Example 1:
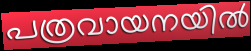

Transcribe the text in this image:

പത്രവായനയിൽ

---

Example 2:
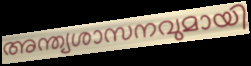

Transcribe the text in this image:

അന്ത്യശാസനവുമായി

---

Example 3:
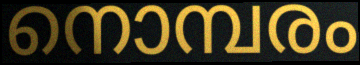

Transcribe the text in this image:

നൊമ്പരം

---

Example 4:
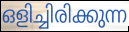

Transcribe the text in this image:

ഒളിച്ചിരിക്കുന്ന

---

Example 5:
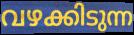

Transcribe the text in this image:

വഴക്കിടുന്ന